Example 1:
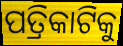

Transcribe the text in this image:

ପତ୍ରିକାଟିକୁ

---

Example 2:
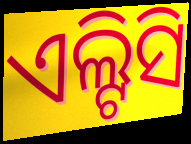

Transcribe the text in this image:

ଏଲ୍ଟିସି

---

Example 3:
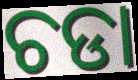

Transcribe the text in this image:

ଚଡା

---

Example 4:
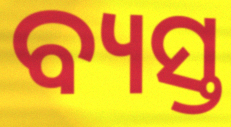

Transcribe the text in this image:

ବ୍ୟସ୍ତ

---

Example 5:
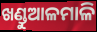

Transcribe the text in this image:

ଖଣ୍ଡୁଆଳମାଳି